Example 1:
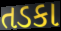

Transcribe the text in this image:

તડકા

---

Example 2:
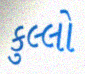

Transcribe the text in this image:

કુલ્લો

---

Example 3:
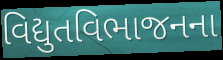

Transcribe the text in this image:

વિદ્યુતવિભાજનના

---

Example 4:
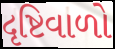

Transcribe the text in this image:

દૃષ્ટિવાળો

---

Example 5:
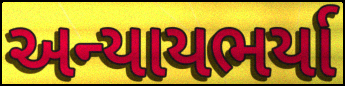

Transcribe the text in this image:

અન્યાયભર્યા